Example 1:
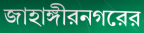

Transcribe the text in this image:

জাহাঙ্গীরনগরের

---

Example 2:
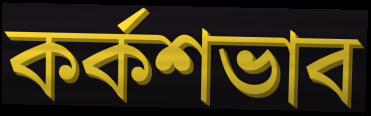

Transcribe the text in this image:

কর্কশভাব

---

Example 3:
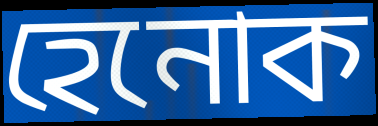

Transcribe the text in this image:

হেনোক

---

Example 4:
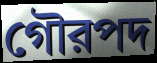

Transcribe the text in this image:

গৌরপদ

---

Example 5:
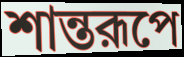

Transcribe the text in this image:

শান্তরূপে